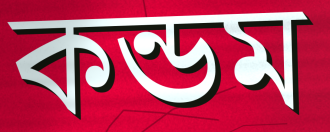
কন্ডম